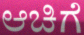
ಆಚಿಗೆ